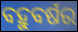
ବହୁବର୍ଷର